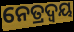
ନେତ୍ରଦ୍ୱୟ